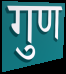
गुण